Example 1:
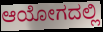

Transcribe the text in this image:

ಆಯೋಗದಲ್ಲಿ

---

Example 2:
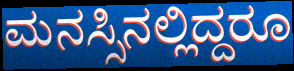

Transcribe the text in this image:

ಮನಸ್ಸಿನಲ್ಲಿದ್ದರೂ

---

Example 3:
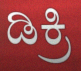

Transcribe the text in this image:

ಡಿಕ್ರಿ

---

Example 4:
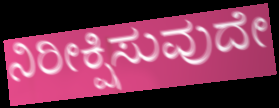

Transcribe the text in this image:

ನಿರೀಕ್ಷಿಸುವುದೇ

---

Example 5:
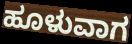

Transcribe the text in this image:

ಹೂಳುವಾಗ